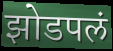
झोडपलं